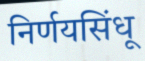
निर्णयसिंधू